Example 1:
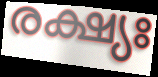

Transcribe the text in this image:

രക്ഷ്യഃ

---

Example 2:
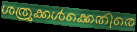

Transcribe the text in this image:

ശത്രുക്കൾക്കെതിരെ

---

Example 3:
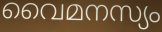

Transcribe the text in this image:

വൈമനസ്യം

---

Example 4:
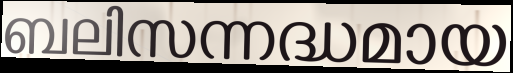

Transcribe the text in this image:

ബലിസന്നദ്ധമായ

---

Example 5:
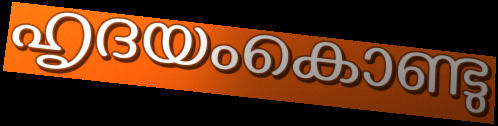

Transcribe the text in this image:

ഹൃദയംകൊണ്ടു